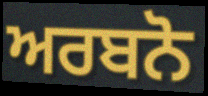
ਅਰਬਨੋ